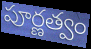
పూర్ణత్వం